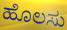
ಹೊಲಸು